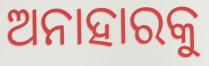
ଅନାହାରକୁ